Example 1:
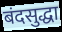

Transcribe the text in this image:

बंदसुद्धा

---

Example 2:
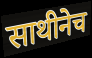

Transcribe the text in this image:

साथीनेच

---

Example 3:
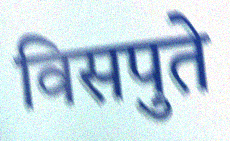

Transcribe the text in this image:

विसपुते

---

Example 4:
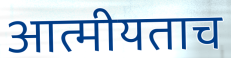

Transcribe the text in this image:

आत्मीयताच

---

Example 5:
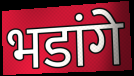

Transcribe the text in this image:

भडांगे